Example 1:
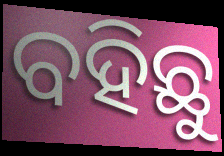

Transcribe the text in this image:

ବହିଛୁ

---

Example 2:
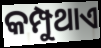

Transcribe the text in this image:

କମ୍ପୁଥାଏ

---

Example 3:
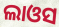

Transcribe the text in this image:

ଲାଓସ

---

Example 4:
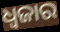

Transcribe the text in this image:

ଧ୍ୱଜାର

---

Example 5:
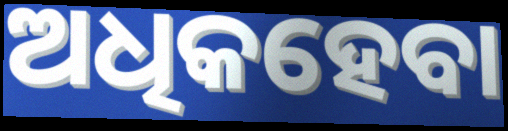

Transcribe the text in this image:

ଅଧିକହେବା